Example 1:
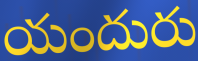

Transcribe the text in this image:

యందురు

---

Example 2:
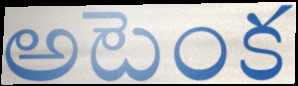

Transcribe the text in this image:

అటెంక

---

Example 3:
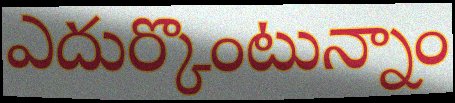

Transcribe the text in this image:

ఎదుర్కొంటున్నాం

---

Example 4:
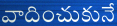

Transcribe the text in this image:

వాదించుకునే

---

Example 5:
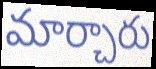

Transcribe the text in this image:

మార్చారు